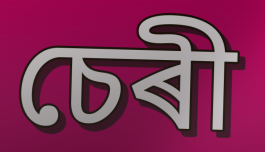
চেৰী